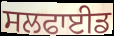
ਸਲਫਾਈਡ